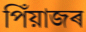
পিঁয়াজৰ